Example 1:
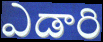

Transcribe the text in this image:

ఎడారి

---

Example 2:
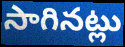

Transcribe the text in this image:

సాగినట్లు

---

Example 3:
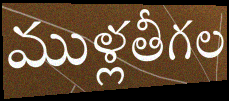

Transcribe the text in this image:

ముళ్లతీగల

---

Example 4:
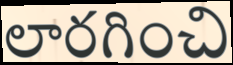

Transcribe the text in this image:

లారగించి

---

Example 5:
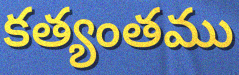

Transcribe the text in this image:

కత్యంతము